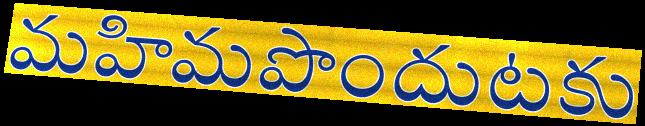
మహిమపొందుటకు